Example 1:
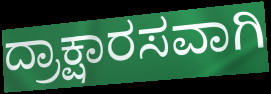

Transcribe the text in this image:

ದ್ರಾಕ್ಷಾರಸವಾಗಿ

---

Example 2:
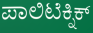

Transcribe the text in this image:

ಪಾಲಿಟೆಕ್ನಿಕ್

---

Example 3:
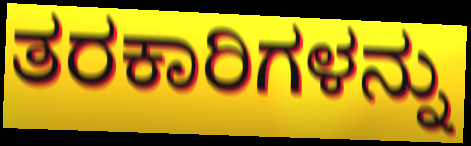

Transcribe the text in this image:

ತರಕಾರಿಗಳನ್ನು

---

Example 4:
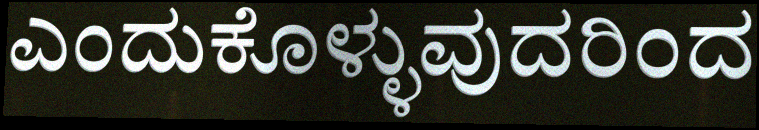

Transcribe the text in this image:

ಎಂದುಕೊಳ್ಳುವುದರಿಂದ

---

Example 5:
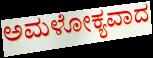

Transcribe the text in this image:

ಅಮಳೋಕ್ಯವಾದ